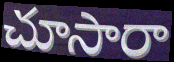
చూసారా